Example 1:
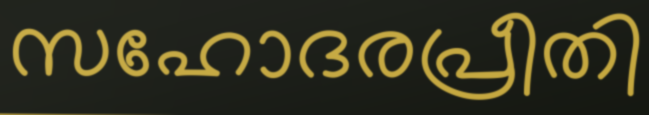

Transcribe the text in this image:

സഹോദരപ്രീതി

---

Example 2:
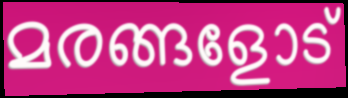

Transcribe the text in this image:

മരങ്ങളോട്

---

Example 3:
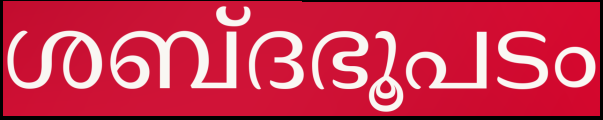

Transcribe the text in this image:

ശബ്ദഭൂപടം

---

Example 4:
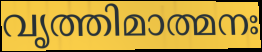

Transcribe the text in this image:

വൃത്തിമാത്മനഃ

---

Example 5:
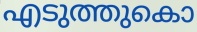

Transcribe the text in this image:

എടുത്തുകൊ